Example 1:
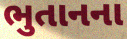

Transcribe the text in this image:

ભુતાનના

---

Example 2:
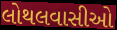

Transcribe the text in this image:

લોથલવાસીઓ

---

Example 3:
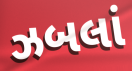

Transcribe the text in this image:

ઝબલાં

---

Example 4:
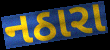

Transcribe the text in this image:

નઠારા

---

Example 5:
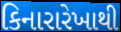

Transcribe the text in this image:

કિનારારેખાથી